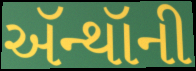
ઍન્થૉની